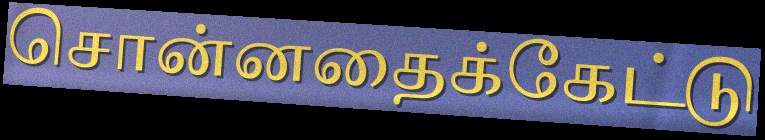
சொன்னதைக்கேட்டு